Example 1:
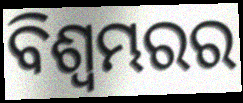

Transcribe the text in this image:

ବିଶ୍ଵମ୍ଭରର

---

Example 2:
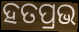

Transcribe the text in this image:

ହତପ୍ରଭ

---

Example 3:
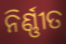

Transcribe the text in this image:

ନିର୍ଣ୍ଣୀତ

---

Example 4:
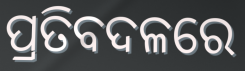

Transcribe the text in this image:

ପ୍ରତିବଦଳରେ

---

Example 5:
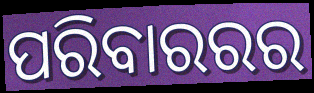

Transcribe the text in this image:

ପରିବାରରର